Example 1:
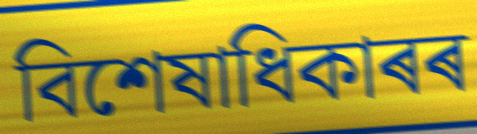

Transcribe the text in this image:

বিশেষাধিকাৰৰ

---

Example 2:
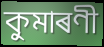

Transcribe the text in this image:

কুমাৰণী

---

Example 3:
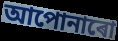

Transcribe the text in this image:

আপোনাৰো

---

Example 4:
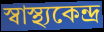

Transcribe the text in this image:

স্বাস্থ্যকেন্দ্ৰ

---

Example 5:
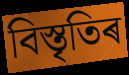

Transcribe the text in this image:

বিস্তৃতিৰ